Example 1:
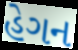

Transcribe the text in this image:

હેગન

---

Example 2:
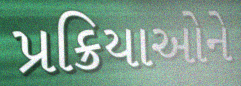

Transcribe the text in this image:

પ્રક્રિયાઓને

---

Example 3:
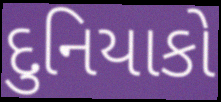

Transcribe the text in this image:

દુનિયાકો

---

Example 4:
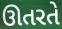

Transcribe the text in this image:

ઊતરતે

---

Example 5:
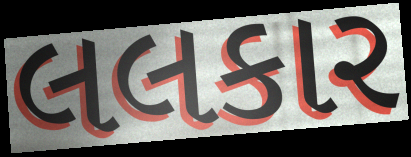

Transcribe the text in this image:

લલકાર